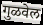
गुळवेल